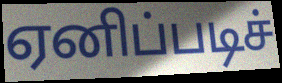
ஏனிப்படிச்